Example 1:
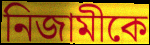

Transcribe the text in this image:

নিজামীকে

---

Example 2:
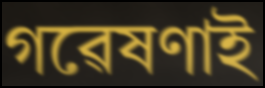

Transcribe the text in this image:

গৱেষণাই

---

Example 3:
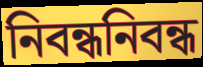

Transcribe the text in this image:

নিবন্ধনিবন্ধ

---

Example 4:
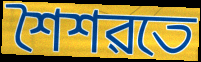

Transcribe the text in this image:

শৈশৱতে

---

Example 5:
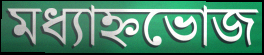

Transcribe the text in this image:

মধ্যাহ্নভোজ